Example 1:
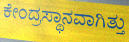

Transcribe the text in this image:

ಕೇಂದ್ರಸ್ಥಾನವಾಗಿತ್ತು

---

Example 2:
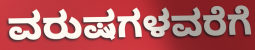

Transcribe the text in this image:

ವರುಷಗಳವರೆಗೆ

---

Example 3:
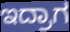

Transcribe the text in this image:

ಇದ್ರಾಗ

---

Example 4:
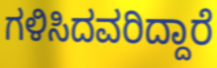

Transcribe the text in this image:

ಗಳಿಸಿದವರಿದ್ದಾರೆ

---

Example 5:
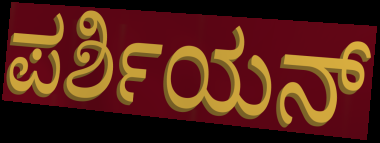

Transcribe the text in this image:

ಪರ್ಶಿಯನ್